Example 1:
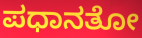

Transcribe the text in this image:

ಪಧಾನತೋ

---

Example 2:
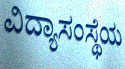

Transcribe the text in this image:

ವಿದ್ಯಾಸಂಸ್ಥೆಯ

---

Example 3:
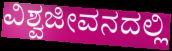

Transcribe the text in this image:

ವಿಶ್ವಜೀವನದಲ್ಲಿ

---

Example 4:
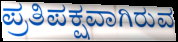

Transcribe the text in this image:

ಪ್ರತಿಪಕ್ಷವಾಗಿರುವ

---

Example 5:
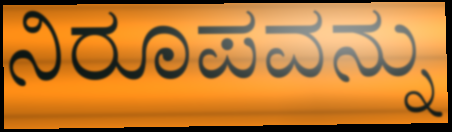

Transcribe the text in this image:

ನಿರೂಪವನ್ನು